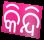
କିନ୍ଦି